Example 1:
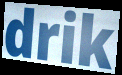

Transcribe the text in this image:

drik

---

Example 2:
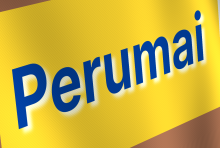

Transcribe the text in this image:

Perumai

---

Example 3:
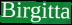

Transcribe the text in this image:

Birgitta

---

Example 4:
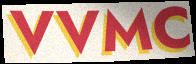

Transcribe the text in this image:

VVMC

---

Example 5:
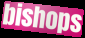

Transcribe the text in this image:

bishops